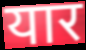
यार